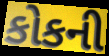
કોકની